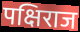
पक्षिराज